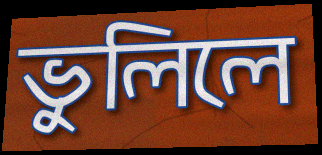
ভুলিলে